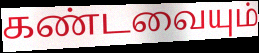
கண்டவையும்